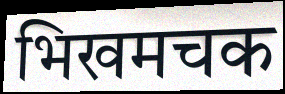
भिखमचक